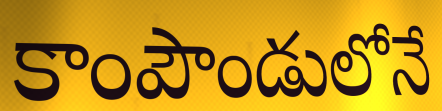
కాంపౌండులోనే